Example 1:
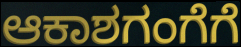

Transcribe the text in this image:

ಆಕಾಶಗಂಗೆಗೆ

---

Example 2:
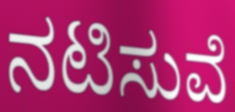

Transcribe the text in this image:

ನಟಿಸುವೆ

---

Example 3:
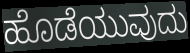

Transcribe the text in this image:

ಹೊಡೆಯುವುದು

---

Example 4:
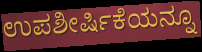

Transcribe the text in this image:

ಉಪಶೀರ್ಷಿಕೆಯನ್ನೂ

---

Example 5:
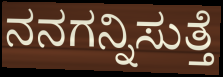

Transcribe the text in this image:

ನನಗನ್ನಿಸುತ್ತೆ